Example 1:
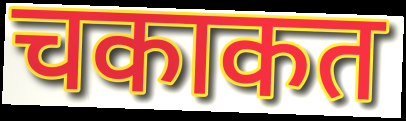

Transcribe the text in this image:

चकाकत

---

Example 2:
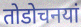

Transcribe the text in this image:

तोडोचनयां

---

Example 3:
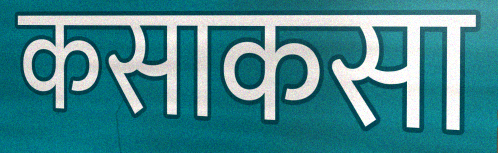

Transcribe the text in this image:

कसाकसा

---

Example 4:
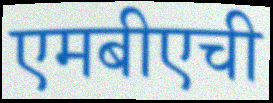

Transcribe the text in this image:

एमबीएची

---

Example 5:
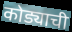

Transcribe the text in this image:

कोड्याची